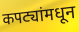
कपट्यांमधून